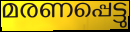
മരണപ്പെട്ടു